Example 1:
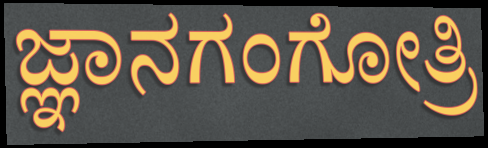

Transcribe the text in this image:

ಜ್ಞಾನಗಂಗೋತ್ರಿ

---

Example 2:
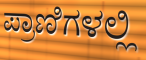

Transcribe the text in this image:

ಪ್ರಾಣಿಗಳಲ್ಲಿ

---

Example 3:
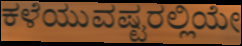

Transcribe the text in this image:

ಕಳೆಯುವಷ್ಟರಲ್ಲಿಯೇ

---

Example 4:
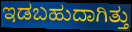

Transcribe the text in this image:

ಇಡಬಹುದಾಗಿತ್ತು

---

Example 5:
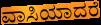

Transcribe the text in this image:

ವಾಸಿಯಾದರೆ